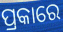
ପ୍ରକାରେ